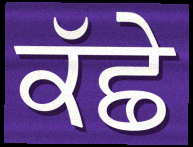
ਕੱਛੇ